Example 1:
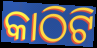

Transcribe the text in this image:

କାଠିଟି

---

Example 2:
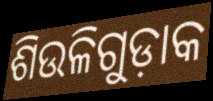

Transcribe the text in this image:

ଶିଉଳିଗୁଡ଼ାକ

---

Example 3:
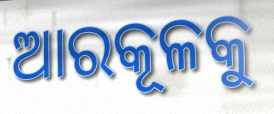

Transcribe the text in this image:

ଆରକୂଳକୁ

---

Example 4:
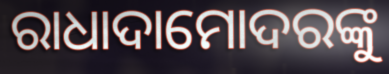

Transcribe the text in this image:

ରାଧାଦାମୋଦରଙ୍କୁ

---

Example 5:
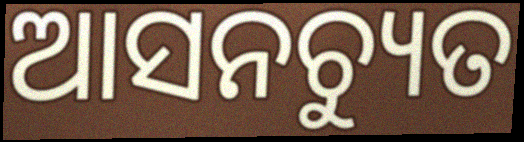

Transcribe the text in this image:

ଆସନଚ୍ୟୁତ